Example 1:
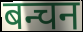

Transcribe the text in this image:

बन्चन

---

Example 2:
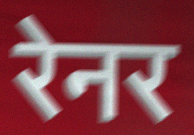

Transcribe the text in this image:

रेनर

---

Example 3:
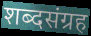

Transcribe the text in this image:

शब्दसंग्रह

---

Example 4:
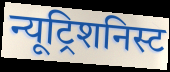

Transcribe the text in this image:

न्‍यूट्रिशनिस्‍ट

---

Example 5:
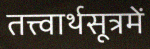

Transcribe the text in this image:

तत्त्वार्थसूत्रमें